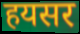
हयसर